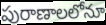
పురాణాలలోనూ